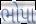
ભોપા